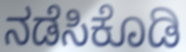
ನಡೆಸಿಕೊಡಿ